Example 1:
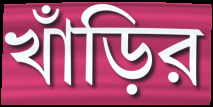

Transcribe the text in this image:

খাঁড়ির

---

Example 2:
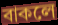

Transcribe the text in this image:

বাকলে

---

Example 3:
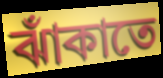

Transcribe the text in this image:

ঝাঁকাতে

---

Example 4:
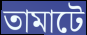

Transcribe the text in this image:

তামাটে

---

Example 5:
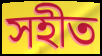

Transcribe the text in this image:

সহীত